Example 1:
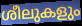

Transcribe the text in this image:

ശീലുകളും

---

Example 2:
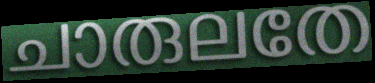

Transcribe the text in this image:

ചാരുലതേ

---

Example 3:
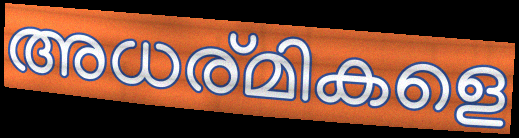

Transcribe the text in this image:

അധര്മികളെ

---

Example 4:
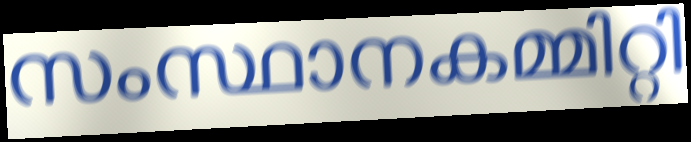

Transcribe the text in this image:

സംസ്ഥാനകമ്മിറ്റി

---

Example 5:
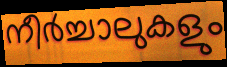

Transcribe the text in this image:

നീർച്ചാലുകളും